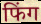
फिंग